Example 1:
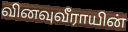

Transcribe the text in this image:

வினவுவீராயின்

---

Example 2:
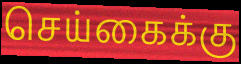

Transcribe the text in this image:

செய்கைக்கு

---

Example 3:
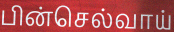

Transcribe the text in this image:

பின்செல்வாய்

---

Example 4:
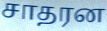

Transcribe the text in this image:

சாதரன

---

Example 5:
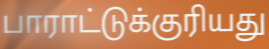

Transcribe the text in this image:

பாராட்டுக்குரியது